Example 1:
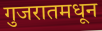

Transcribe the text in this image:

गुजरातमधून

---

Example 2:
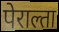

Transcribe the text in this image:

पेराल्ता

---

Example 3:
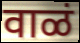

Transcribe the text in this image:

वाळं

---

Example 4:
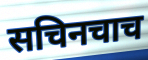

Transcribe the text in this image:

सचिनचाच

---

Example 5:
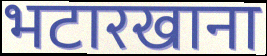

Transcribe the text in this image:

भटारखाना